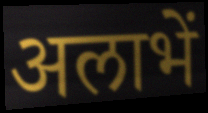
अलाभें